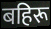
बहिरू